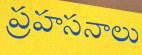
ప్రహసనాలు